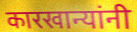
कारखान्यांनी